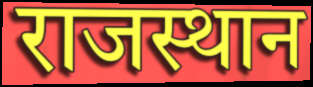
राजस्‍थान